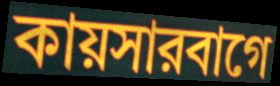
কায়সারবাগে